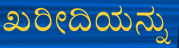
ಖರೀದಿಯನ್ನು